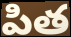
పిత